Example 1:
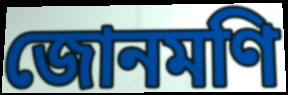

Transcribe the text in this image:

জোনমণি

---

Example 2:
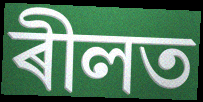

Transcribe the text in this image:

ৰীলত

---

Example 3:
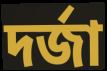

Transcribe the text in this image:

দৰ্জা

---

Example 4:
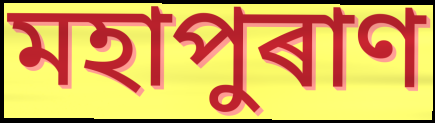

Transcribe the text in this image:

মহাপুৰাণ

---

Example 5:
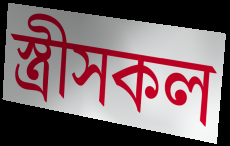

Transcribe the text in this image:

স্ত্ৰীসকল